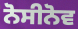
ਨੋਸੀਨੋਵ